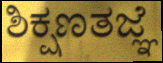
ಶಿಕ್ಷಣತಜ್ಞೆ